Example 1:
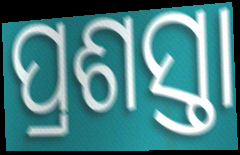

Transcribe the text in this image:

ପ୍ରଶସ୍ତା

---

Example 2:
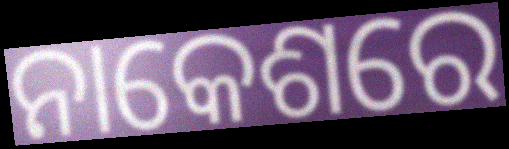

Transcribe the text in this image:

ନାକେଶରେ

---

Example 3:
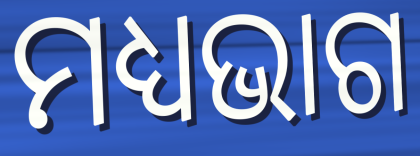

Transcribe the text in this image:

ମଧ୍ୟଭାଗ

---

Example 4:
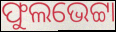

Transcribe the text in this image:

ଫୁଲଭେଟ୍ଟା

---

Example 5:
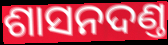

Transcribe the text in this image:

ଶାସନଦଣ୍ତ